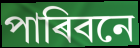
পাৰিবনে